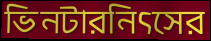
ভিনটারনিৎসের